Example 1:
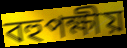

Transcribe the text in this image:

বহুপক্ষীয়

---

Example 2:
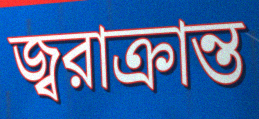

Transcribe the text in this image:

জ্বরাক্রান্ত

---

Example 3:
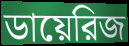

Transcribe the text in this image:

ডায়েরিজ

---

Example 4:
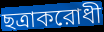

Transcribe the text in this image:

ছত্রাকরোধী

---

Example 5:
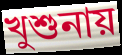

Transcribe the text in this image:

খুশুনায়